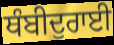
ਥੰਬੀਦੁਰਾਈ